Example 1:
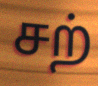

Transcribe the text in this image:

சற்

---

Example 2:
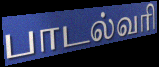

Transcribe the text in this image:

பாடல்வரி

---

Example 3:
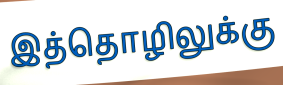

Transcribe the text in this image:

இத்தொழிலுக்கு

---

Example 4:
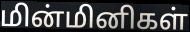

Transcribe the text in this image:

மின்மினிகள்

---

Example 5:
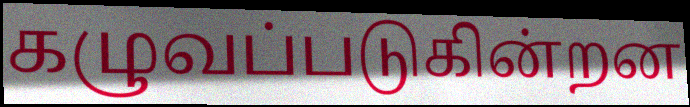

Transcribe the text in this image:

கழுவப்படுகின்றன